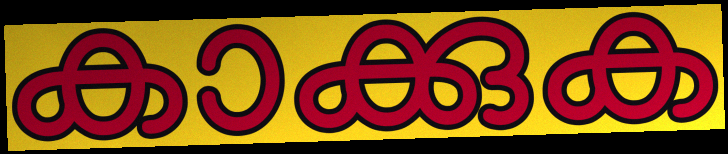
കാക്കുക